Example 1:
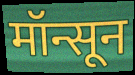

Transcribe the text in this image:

मॉन्सून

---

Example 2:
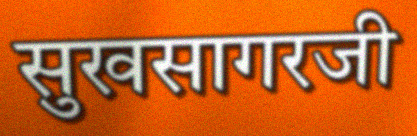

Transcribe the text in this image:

सुखसागरजी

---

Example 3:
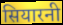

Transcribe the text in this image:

सियारनी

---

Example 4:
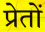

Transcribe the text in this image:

प्रेतों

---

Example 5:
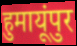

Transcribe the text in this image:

हुमायूंपुर